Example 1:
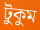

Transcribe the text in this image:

টুকুম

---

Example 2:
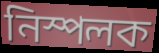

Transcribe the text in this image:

নিস্পলক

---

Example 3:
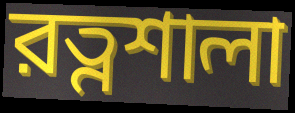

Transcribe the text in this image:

রত্নশালা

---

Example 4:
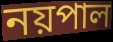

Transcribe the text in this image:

নয়পাল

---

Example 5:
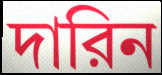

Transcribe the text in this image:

দারিন